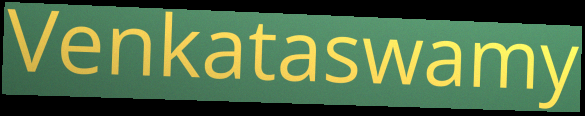
Venkataswamy